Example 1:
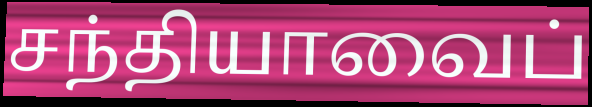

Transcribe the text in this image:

சந்தியாவைப்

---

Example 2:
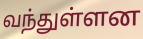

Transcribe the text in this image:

வந்துள்ளன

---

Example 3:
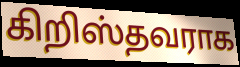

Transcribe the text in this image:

கிறிஸ்தவராக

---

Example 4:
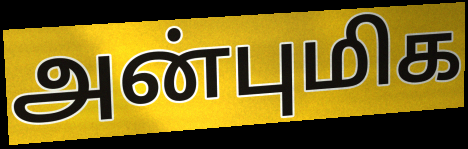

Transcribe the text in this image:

அன்புமிக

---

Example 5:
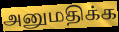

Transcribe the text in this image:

அனுமதிக்க